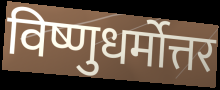
विष्णुधर्मोत्तर